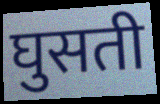
घुसती